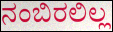
ನಂಬಿರಲಿಲ್ಲ